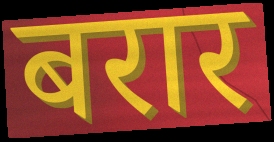
बरार